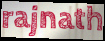
rajnath